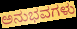
ಅನುಭವಗಳು